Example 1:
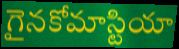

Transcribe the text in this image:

గైనకోమాస్టియా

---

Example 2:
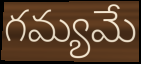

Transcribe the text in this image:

గమ్యమే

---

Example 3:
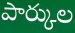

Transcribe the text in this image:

పార్కుల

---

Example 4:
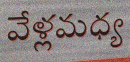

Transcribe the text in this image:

వేళ్లమధ్య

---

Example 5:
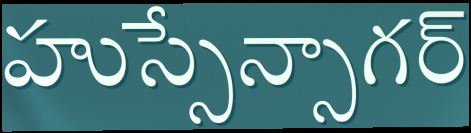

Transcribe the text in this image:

హుస్సేన్సాగర్